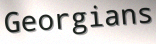
Georgians